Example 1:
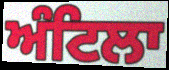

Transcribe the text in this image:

ਅੰਟਿਲਾ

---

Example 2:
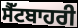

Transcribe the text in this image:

ਸੈੱਟਬਾਹਰੀ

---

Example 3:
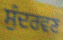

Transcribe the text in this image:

ਸੁੰਦਰਵਣ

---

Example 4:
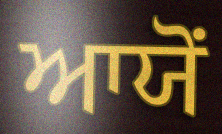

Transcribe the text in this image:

ਆਯੋਂ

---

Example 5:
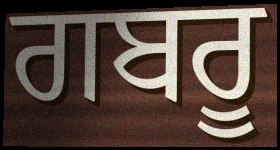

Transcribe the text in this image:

ਗਬਰੂ